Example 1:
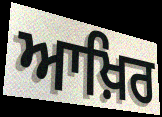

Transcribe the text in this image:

ਆਖ਼ਿਰ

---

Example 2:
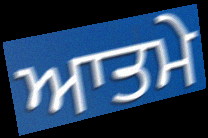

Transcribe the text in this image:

ਆਤਮੇ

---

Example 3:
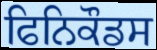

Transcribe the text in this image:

ਫਿਨਿਕੌਡਸ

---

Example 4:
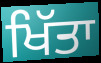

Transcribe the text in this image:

ਖਿੱਤਾ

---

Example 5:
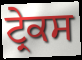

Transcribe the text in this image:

ਟ੍ਰੇਕਸ